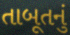
તાબૂતનું